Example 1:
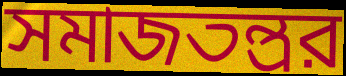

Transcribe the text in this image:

সমাজতন্ত্রর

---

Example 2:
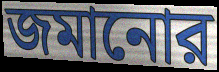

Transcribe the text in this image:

জমানোর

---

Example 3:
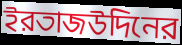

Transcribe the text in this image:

ইরতাজউদিনের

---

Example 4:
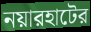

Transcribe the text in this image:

নয়ারহাটের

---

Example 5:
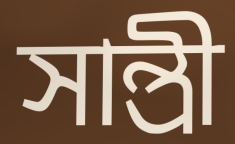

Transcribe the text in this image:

সান্ত্রী